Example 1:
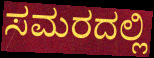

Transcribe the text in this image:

ಸಮರದಲ್ಲಿ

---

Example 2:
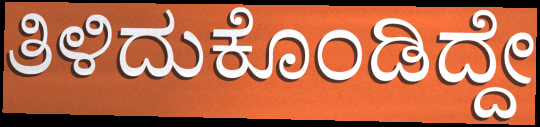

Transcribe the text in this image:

ತಿಳಿದುಕೊಂಡಿದ್ದೇ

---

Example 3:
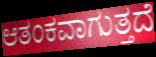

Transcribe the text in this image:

ಆತಂಕವಾಗುತ್ತದೆ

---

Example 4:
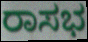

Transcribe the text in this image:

ರಾಸಭ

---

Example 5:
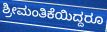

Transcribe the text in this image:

ಶ್ರೀಮಂತಿಕೆಯಿದ್ದರೂ